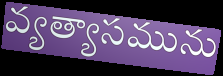
వ్యత్యాసమును